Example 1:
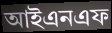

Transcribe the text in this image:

আইএনএফ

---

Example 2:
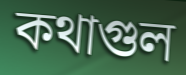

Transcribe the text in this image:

কথাগুল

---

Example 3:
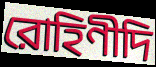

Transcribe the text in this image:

রোহিণীদি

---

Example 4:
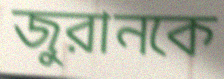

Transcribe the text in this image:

জুরানকে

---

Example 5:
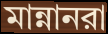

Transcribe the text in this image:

মান্নানরা